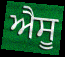
ਐਸੂ